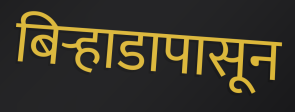
बिऱ्हाडापासून